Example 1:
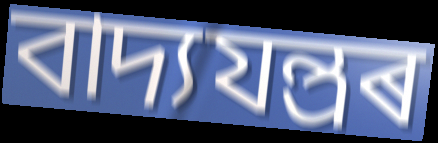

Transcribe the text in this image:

বাদ্যযন্ত্ৰৰ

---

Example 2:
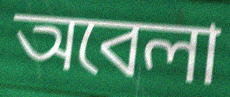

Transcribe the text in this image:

অবেলা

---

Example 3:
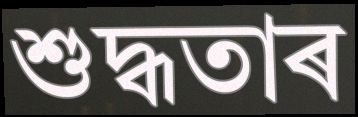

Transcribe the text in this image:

শুদ্ধতাৰ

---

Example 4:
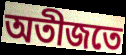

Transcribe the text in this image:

অতীজতে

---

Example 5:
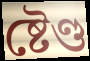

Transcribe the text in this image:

ষ্টেণ্ড